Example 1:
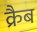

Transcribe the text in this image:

क्रैब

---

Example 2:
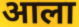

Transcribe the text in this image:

आला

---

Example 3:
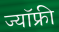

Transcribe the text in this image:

ज्यॉफ्री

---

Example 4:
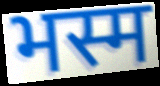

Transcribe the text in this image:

भस्म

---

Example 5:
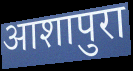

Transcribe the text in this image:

आशापुरा